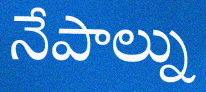
నేపాల్ను